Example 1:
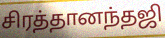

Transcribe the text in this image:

சிரத்தானந்தஜி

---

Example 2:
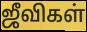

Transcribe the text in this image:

ஜீவிகள்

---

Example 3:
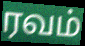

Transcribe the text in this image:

ரவம்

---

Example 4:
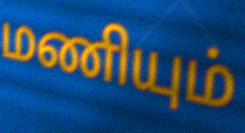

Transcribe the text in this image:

மணியும்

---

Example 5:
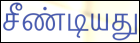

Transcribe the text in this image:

சீண்டியது